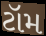
ટૉમ